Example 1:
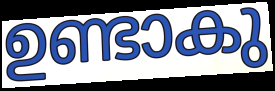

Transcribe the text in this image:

ഉണ്ടാകു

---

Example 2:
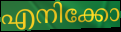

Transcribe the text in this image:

എനിക്കോ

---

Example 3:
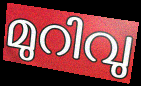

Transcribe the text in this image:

മുറിവു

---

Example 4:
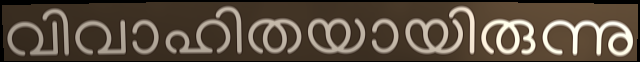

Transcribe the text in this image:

വിവാഹിതയായിരുന്നു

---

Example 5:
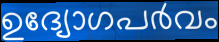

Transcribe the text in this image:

ഉദ്യോഗപർവം